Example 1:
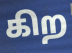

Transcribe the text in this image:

கிற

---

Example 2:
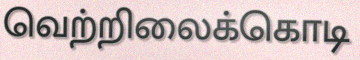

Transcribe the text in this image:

வெற்றிலைக்கொடி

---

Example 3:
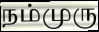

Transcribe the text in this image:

நம்முரு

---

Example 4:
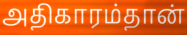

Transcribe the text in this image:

அதிகாரம்தான்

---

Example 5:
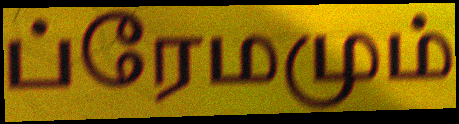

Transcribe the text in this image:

ப்ரேமமும்